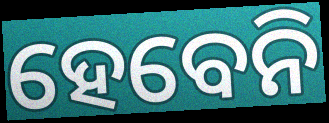
ହେବେନି